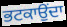
ਭਟਕਾਉਂਦਾ